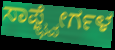
ಸಾಫ್ಟ್ವೇರ್ಗಳ